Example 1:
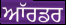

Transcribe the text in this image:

ਆੱਰਡਰ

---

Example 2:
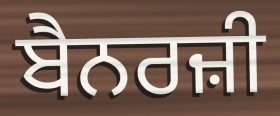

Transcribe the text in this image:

ਬੈਨਰਜ਼ੀ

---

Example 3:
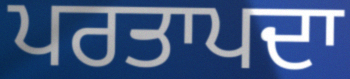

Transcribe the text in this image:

ਪਰਤਾਪਦਾ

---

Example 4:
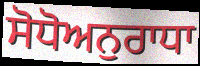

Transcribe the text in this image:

ਸੋਧੋਅਨੁਰਾਧਾ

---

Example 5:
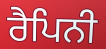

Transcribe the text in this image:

ਰੈਪਿਨੀ